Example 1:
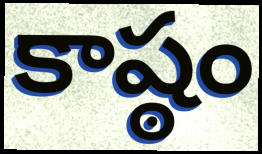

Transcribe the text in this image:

కాష్ఠం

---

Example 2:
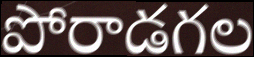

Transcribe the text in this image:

పోరాడగల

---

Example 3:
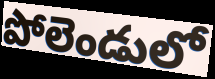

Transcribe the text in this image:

పోలెండులో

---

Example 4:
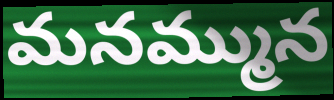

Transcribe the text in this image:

మనమ్మున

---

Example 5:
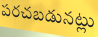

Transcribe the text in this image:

పరచబడునట్లు